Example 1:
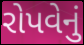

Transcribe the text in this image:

રોપવેનું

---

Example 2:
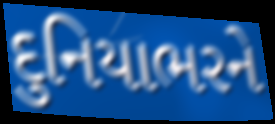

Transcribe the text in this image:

દુનિયાભરને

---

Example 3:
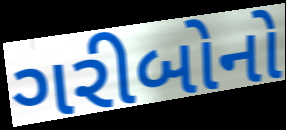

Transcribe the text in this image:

ગરીબોનો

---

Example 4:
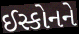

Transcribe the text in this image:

ઈસ્કોનને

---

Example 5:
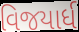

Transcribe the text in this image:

વિજયાર્ધ